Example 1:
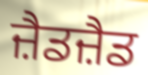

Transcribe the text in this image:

ਜ਼ੈਡਜ਼ੈਡ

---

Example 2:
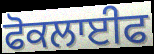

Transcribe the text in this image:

ਫੋਕਲਾਈਫ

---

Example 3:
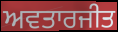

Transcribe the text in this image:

ਅਵਤਾਰਜੀਤ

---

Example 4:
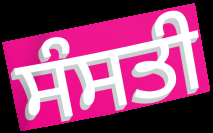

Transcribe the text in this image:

ਸੰਸਤੀ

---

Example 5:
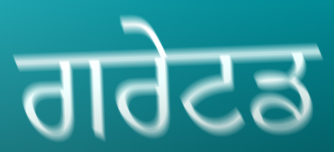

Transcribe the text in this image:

ਗਰੇਟਡ